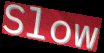
Slow